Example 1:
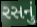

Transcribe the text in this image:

રસનું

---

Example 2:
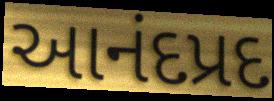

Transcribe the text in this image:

આનંદપ્રદ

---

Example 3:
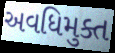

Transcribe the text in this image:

અવધિમુક્ત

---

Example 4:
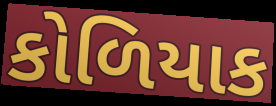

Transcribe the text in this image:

કોળિયાક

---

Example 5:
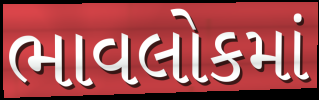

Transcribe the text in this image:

ભાવલોકમાં